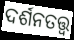
ଦର୍ଶନତତ୍ତ୍ଵ